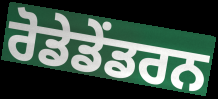
ਰੋਡੇਡੇਂਡਰਨ